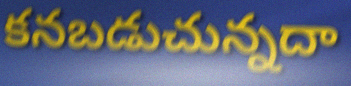
కనబడుచున్నదా